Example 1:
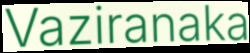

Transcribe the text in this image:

Vaziranaka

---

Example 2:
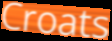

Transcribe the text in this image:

Croats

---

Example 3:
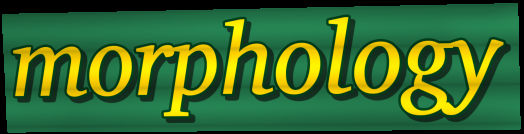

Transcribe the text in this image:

morphology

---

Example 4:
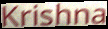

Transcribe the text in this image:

Krishna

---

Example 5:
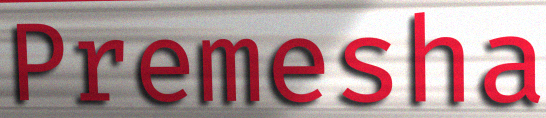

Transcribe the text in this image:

Premesha